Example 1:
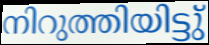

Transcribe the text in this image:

നിറുത്തിയിട്ടു്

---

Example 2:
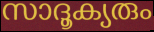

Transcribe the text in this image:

സാദൂക്യരും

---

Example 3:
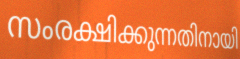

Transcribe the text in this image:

സംരക്ഷിക്കുന്നതിനായി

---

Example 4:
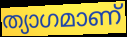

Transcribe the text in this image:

ത്യാഗമാണ്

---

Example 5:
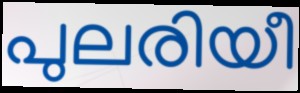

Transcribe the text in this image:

പുലരിയീ